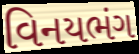
વિનયભંગ